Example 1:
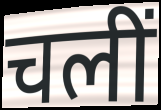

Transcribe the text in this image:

चलीं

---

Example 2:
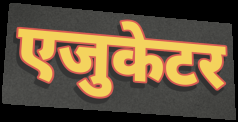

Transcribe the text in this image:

एजुकेटर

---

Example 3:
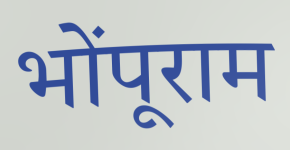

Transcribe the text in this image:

भोंपूराम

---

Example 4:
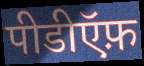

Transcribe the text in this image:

पीडीऍफ़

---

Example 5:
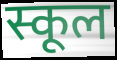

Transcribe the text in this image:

स्कूल